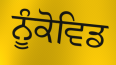
ਨੂੰਕੋਵਿਡ